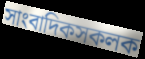
সাংবাদিকসকলক